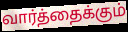
வார்த்தைக்கும்